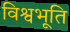
विश्वभूति